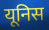
यूनिस